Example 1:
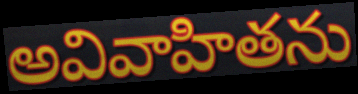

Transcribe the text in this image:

అవివాహితను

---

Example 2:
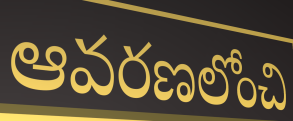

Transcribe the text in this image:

ఆవరణలోంచి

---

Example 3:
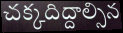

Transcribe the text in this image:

చక్కదిద్దాల్సిన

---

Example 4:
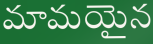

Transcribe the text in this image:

మామయైన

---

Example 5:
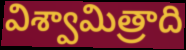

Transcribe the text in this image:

విశ్వామిత్రాది